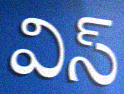
విస్